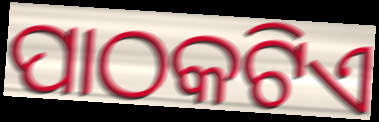
ପାଠକଟିଏ